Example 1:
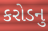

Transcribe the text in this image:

કરોડનુ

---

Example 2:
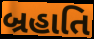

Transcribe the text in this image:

બ્રહાતિ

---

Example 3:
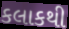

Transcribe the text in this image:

કલાકથી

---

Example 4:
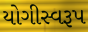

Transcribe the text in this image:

યોગીસ્વરૂપ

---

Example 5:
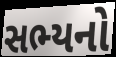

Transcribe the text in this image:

સભ્યનો